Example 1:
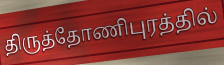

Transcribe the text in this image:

திருத்தோணிபுரத்தில்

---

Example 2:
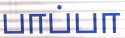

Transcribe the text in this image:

பாப்பா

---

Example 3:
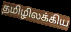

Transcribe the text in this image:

தமிழிலக்கிய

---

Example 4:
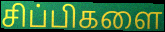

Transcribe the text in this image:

சிப்பிகளை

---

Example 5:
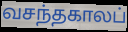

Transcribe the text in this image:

வசந்தகாலப்